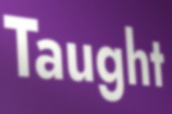
Taught